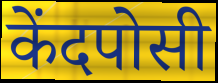
केंदपोसी